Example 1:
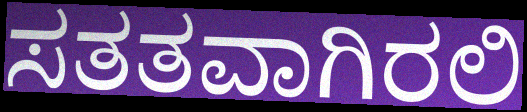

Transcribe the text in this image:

ಸತತವಾಗಿರಲಿ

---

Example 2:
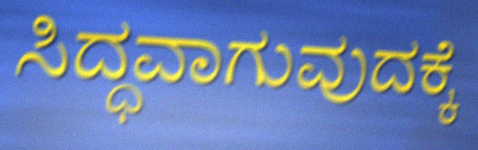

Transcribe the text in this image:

ಸಿದ್ಧವಾಗುವುದಕ್ಕೆ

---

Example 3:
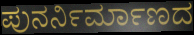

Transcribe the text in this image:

ಪುನರ್ನಿರ್ಮಾಣದ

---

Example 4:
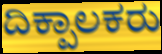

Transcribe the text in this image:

ದಿಕ್ಪಾಲಕರು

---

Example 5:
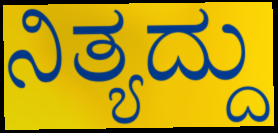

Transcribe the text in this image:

ನಿತ್ಯದ್ದು